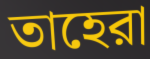
তাহেরা